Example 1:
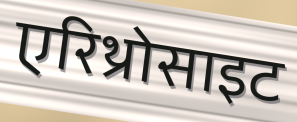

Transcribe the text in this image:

एरिथ्रोसाइट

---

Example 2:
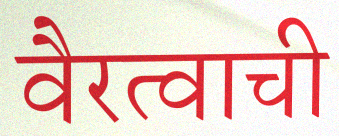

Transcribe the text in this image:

वैरत्वाची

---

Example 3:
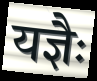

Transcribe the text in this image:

यज्ञैः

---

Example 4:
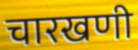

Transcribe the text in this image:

चारखणी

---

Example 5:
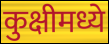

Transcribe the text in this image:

कुक्षीमध्ये